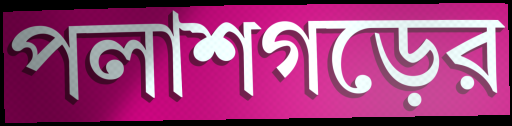
পলাশগড়ের